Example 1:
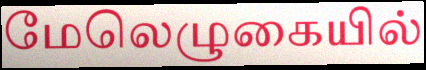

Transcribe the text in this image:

மேலெழுகையில்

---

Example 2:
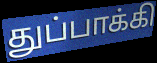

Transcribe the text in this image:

துப்பாக்கி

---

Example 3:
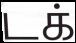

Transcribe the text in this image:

டக்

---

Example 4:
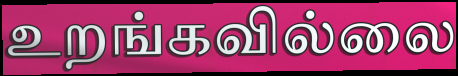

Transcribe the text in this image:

உறங்கவில்லை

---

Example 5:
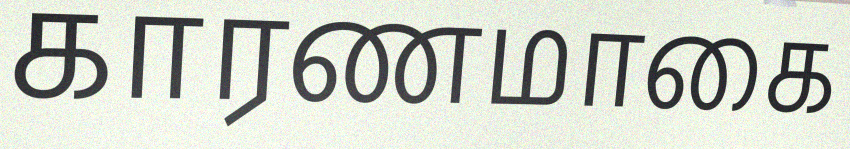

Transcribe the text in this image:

காரணமாகை